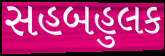
સહબહુલક